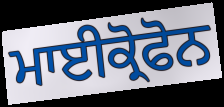
ਮਾਈਕ੍ਰੋਫੋਨ